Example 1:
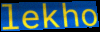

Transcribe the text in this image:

lekho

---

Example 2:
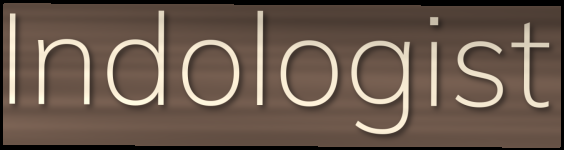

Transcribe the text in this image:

Indologist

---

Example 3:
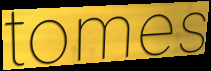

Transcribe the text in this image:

tomes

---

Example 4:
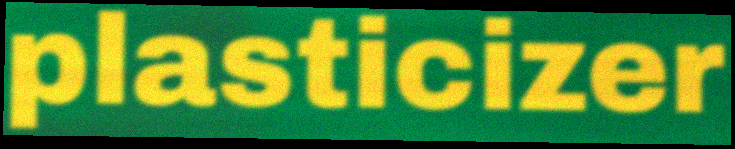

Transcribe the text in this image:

plasticizer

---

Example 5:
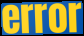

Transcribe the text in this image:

error